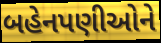
બહેનપણીઓને